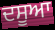
ਦਸੂਆ